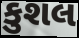
કુશલ